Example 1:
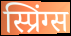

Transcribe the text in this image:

स्प्रिंग्स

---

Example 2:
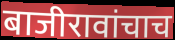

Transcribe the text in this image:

बाजीरावांचाच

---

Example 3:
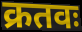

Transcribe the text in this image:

क्रतवः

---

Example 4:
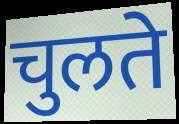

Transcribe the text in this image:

चुलते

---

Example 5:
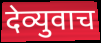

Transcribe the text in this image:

देव्युवाच